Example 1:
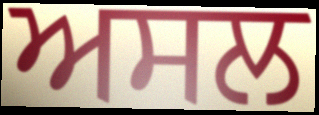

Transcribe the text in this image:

ਅਸਲ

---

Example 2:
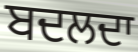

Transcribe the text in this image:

ਬਦਲਦਾ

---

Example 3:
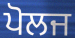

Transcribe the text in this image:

ਪੋਲਜ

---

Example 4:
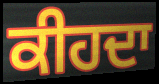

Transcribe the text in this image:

ਕੀਹਦਾ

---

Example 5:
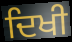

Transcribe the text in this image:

ਦਿਖੀ